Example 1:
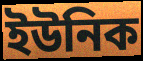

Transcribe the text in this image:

ইউনিক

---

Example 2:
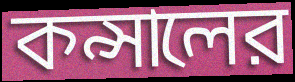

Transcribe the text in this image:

কন্সালের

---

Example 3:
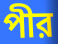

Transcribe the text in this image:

পীর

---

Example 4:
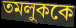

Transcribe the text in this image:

তমলুককে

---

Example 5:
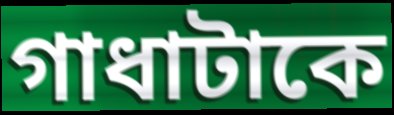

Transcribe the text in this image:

গাধাটাকে